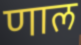
णाल